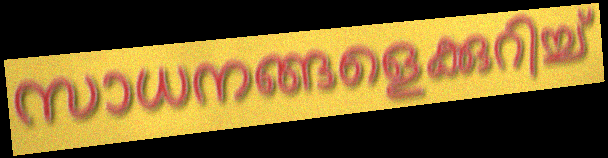
സാധനങ്ങളെക്കുറിച്ച്